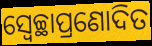
ସ୍ୱେଚ୍ଛାପ୍ରଣୋଦିତ